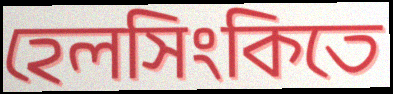
হেলসিংকিতে